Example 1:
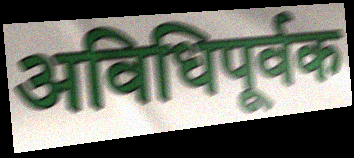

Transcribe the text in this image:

अविधिपूर्वक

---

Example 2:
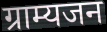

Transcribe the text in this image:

ग्राम्यजन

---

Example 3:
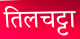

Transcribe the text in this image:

तिलचट्टा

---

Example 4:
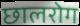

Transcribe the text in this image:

छालरोग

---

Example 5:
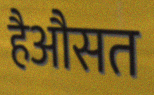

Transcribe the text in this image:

हैऔसत